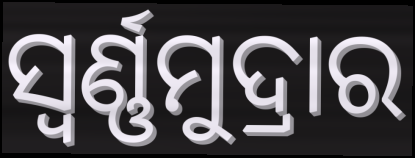
ସ୍ୱର୍ଣ୍ଣମୁଦ୍ରାର